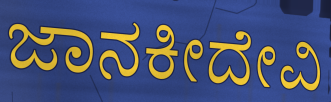
ಜಾನಕೀದೇವಿ